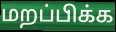
மறப்பிக்க